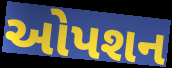
ઓપશન